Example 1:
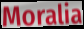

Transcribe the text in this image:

Moralia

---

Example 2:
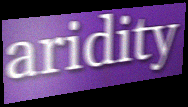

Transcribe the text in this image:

aridity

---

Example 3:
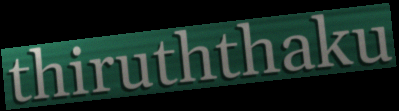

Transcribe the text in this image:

thiruththaku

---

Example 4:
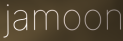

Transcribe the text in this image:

jamoon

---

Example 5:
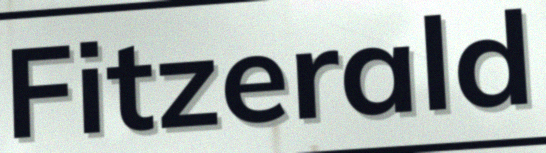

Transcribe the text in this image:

Fitzerald